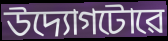
উদ্যোগটোৱে